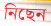
নিছেন